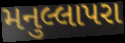
મનુલ્લાપરા